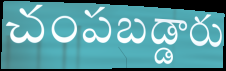
చంపబడ్డారు